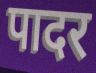
पादर